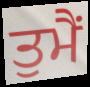
ਤੁਮੈਂ